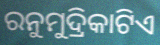
ରନୁମୁଦ୍ରିକାଟିଏ